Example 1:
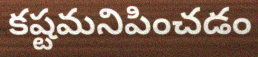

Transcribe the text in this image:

కష్టమనిపించడం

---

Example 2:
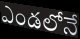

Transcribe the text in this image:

ఎండలోనే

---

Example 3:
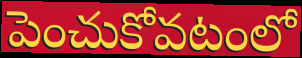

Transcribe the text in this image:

పెంచుకోవటంలో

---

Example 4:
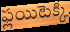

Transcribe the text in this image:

ఫ్లయిటెక్కి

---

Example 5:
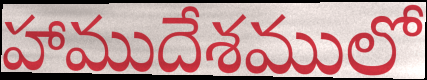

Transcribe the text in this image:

హాముదేశములో